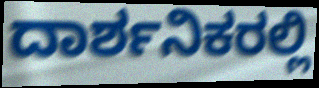
ದಾರ್ಶನಿಕರಲ್ಲಿ